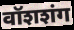
वॉशशंग